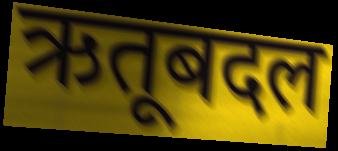
ऋतूबदल